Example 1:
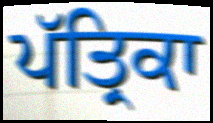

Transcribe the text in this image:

ਪੱਤ੍ਰਿਕਾ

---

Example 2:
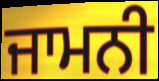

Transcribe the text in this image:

ਜਾਮਨੀ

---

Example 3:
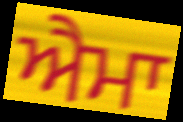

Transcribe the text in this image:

ਐਮਾ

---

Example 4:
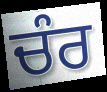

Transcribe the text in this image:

ਚੰਰ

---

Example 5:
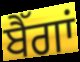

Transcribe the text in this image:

ਬੈੱਗਾਂ